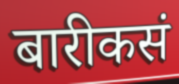
बारीकसं